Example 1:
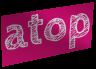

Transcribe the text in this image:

atop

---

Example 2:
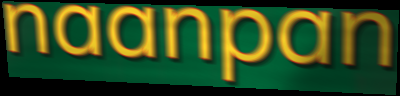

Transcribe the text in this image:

naanpan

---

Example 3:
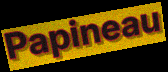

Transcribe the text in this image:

Papineau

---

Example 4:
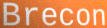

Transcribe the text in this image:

Brecon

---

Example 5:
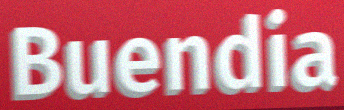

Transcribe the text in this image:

Buendia